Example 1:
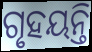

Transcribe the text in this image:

ଗୃହୟନ୍ତି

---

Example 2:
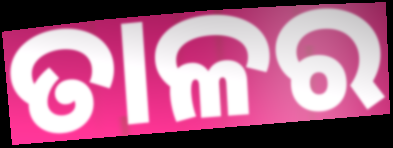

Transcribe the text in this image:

ତାଳର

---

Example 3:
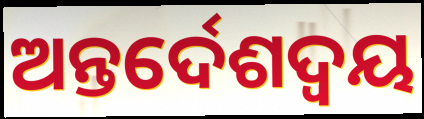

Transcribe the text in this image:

ଅନ୍ତର୍ଦେଶଦ୍ଵୟ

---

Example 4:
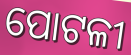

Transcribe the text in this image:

ପୋଟଳୀ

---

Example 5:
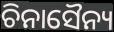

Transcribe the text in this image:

ଚିନାସୈନ୍ୟ